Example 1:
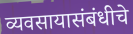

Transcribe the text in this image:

व्यवसायासंबंधीचे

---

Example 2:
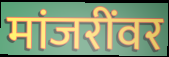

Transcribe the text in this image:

मांजरींवर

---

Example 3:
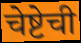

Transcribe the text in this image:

चेष्टेची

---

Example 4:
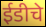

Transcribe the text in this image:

ईडीचे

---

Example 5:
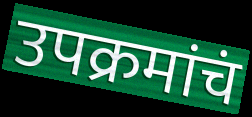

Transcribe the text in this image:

उपक्रमांचं